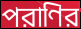
পরাণির